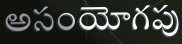
అసంయోగపు